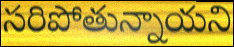
సరిపోతున్నాయని